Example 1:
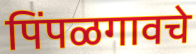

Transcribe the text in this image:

पिंपळगावचे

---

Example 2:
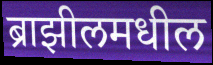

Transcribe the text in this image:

ब्राझीलमधील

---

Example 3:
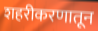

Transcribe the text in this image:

शहरीकरणातून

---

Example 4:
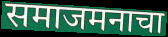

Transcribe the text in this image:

समाजमनाचा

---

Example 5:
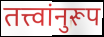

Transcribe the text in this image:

तत्त्वांनुरूप